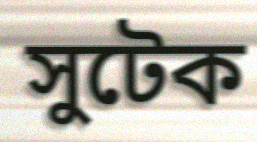
সুটেক